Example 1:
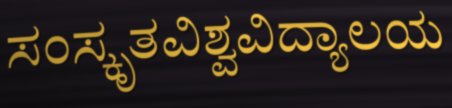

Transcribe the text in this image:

ಸಂಸ್ಕೃತವಿಶ್ವವಿದ್ಯಾಲಯ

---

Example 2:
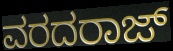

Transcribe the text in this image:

ವರದರಾಜ್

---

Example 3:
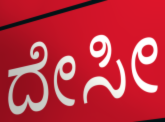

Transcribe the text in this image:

ದೇಸೀ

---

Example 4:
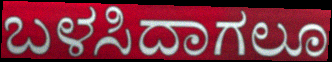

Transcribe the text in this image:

ಬಳಸಿದಾಗಲೂ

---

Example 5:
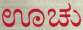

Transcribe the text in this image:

ಊಚು